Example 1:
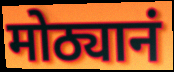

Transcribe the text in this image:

मोठ्यानं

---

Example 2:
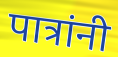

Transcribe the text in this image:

पात्रांनी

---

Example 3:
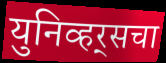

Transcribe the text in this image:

युनिव्हर्सचा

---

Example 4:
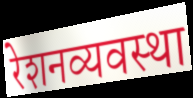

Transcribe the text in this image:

रेशनव्यवस्था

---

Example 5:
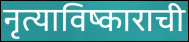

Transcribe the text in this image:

नृत्याविष्काराची